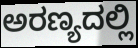
ಅರಣ್ಯದಲ್ಲಿ